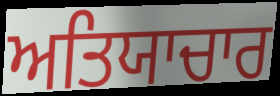
ਅਤਿਯਾਚਾਰ